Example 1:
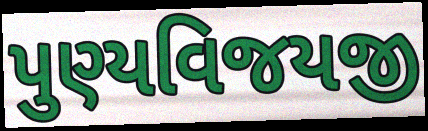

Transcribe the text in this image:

પુણ્યવિજયજી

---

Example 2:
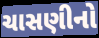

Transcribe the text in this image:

ચાસણીનો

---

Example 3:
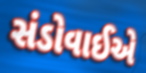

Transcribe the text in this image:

સંડોવાઈએ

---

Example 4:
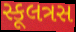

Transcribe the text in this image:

સ્કૂલત્રસ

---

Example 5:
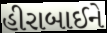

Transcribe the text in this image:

હીરાબાઈને